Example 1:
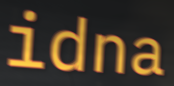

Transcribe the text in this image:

idna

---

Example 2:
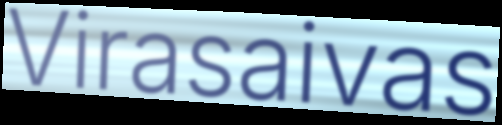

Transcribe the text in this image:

Virasaivas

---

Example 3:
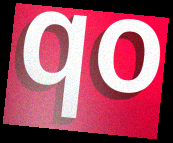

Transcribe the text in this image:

qo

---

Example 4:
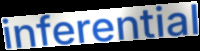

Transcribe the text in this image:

inferential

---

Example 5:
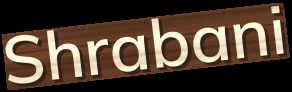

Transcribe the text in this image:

Shrabani